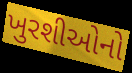
ખુરશીઓનો